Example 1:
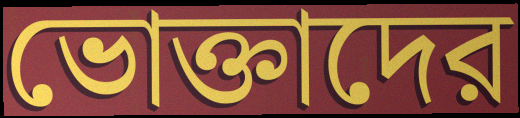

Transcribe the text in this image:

ভোক্তাদের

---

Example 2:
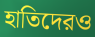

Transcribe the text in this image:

হাতিদেরও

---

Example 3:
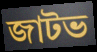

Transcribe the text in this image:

জাটভ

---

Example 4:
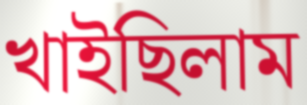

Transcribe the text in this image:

খাইছিলাম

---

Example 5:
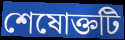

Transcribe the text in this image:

শেষোক্তটি